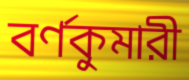
বর্ণকুমারী